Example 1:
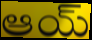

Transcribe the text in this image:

ఆయ్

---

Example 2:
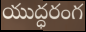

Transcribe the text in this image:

యుద్ధరంగ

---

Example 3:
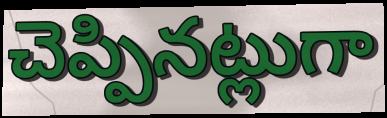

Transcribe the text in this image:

చెప్పినట్లుగా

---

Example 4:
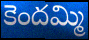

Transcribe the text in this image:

కెందమ్మి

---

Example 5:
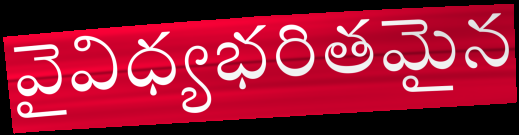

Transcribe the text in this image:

వైవిధ్యభరితమైన